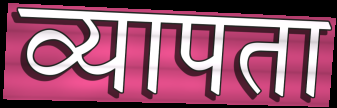
व्यापता